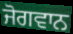
ਜੋਗਵਾਨ